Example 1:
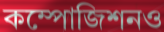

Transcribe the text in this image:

কম্পোজিশনও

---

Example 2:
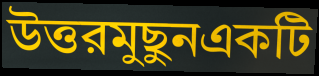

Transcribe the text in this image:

উত্তরমুছুনএকটি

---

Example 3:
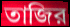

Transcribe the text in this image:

তাজির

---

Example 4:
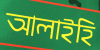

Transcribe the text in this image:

আলাইহি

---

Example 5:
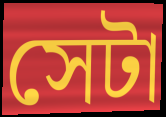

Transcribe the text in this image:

সেটা